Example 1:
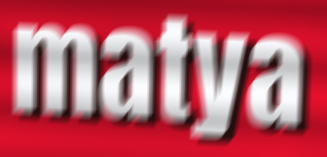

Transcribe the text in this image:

matya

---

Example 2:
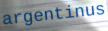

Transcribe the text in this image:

argentinus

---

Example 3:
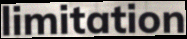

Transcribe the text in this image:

limitation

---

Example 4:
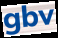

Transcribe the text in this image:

gbv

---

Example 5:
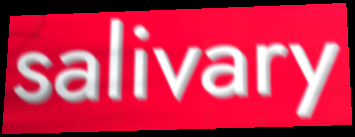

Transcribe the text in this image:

salivary